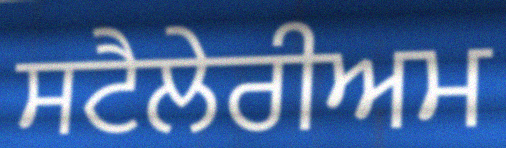
ਸਟੈਲੇਰੀਅਮ